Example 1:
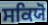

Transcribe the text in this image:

ਸਕਿਯੋ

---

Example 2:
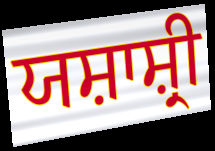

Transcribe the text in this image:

ਯਸ਼ਾਸ਼੍ਰੀ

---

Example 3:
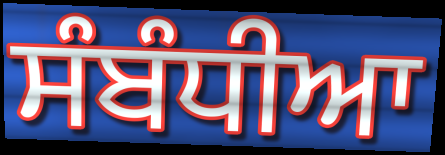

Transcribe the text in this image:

ਸੰਬੰਧੀਆ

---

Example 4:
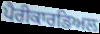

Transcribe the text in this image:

ਪੈਰੀਕਾਰਡਿਅਲ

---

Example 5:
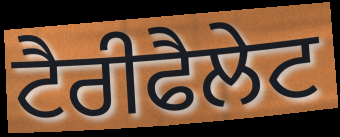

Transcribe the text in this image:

ਟੈਰੀਫੈਲੇਟ